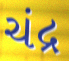
ચંદ્ર